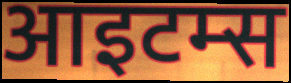
आइटम्स